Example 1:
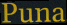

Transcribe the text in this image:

Puna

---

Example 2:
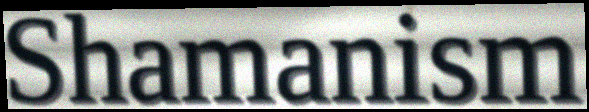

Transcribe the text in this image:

Shamanism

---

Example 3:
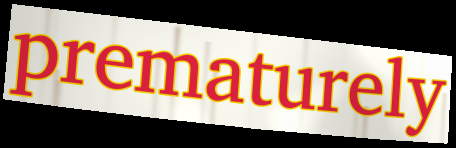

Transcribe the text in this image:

prematurely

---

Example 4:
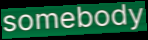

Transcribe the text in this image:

somebody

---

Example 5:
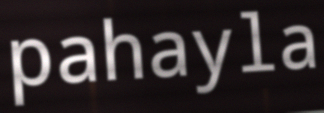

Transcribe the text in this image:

pahayla